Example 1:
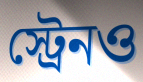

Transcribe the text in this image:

স্ট্রেনও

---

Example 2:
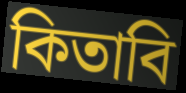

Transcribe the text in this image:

কিতাবি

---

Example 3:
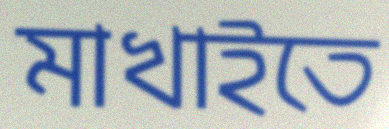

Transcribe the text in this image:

মাখাইতে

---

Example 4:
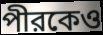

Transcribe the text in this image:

পীরকেও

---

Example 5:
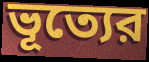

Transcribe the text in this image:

ভূত্যের